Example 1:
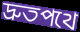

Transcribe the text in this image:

দ্রুতপথে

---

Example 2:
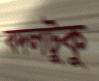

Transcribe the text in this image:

বদলটুকু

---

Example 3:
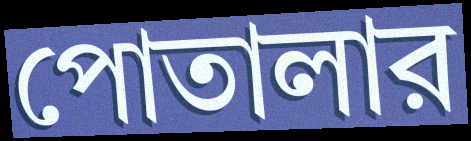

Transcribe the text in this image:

পোতালার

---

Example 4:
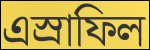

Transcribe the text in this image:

এস্রাফিল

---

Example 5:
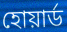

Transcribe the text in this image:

হোয়ার্ড